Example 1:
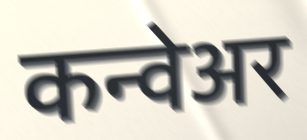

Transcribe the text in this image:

कन्वेअर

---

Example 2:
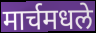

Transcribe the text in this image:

मार्चमधले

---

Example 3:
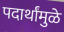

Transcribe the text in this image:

पदार्थांमुळे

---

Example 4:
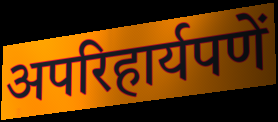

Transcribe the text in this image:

अपरिहार्यपणें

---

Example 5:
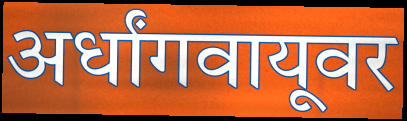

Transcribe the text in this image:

अर्धांगवायूवर